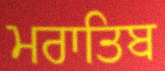
ਮਰਾਤਿਬ